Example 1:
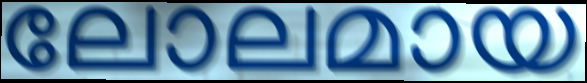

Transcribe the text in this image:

ലോലമായ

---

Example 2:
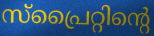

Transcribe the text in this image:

സ്പ്രൈറ്റിന്റെ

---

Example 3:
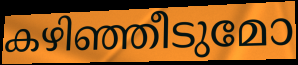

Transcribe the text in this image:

കഴിഞ്ഞീടുമോ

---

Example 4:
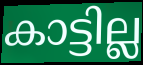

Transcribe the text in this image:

കാട്ടില്ല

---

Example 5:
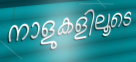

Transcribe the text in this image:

നാളുകളിലൂടെ